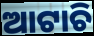
ଆଟାଚି